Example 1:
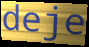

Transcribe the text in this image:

deje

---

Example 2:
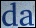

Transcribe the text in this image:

da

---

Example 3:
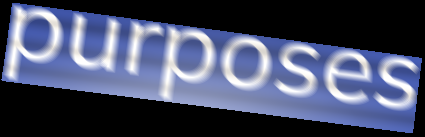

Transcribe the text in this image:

purposes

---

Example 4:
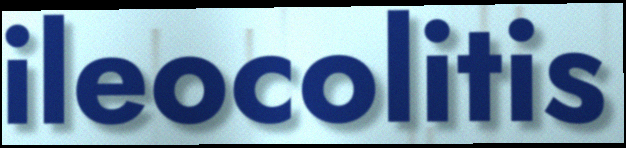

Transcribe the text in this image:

ileocolitis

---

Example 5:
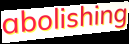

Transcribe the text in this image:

abolishing